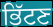
ਭਿੱਟਣ